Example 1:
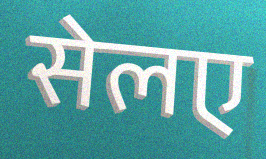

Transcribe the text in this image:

सेलए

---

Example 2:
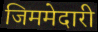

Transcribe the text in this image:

जिममेदारी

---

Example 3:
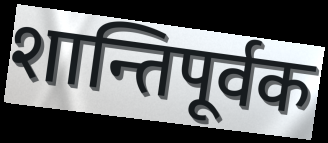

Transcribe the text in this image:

शान्तिपूर्वक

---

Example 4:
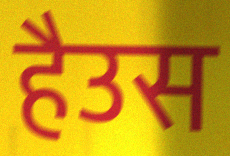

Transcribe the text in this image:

हैउस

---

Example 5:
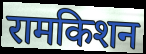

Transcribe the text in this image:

रामकिशन